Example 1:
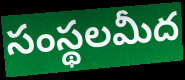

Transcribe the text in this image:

సంస్థలమీద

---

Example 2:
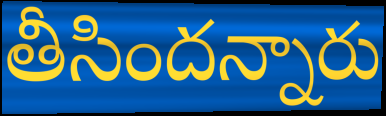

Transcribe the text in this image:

తీసిందన్నారు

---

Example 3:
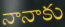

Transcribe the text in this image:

నానాకు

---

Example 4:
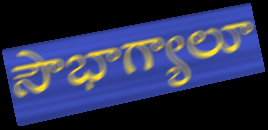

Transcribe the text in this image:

సౌభాగ్యాలూ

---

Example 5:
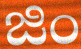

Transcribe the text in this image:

జిం